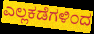
ಎಲ್ಲಕಡೆಗಳಿಂದ